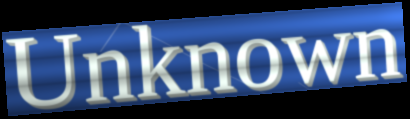
Unknown